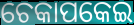
ଚେକାପକେଇ